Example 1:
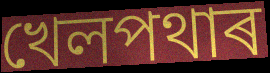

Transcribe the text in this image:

খেলপথাৰ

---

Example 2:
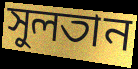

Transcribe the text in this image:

সুলতান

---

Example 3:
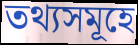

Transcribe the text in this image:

তথ্যসমূহে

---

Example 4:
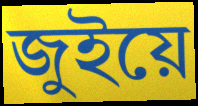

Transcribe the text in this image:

জুইয়ে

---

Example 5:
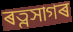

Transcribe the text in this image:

ৰত্নসাগৰ